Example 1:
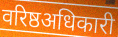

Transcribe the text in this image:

वरिष्ठअधिकारी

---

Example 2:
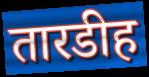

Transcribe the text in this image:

तारडीह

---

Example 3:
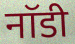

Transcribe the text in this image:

नॉडी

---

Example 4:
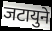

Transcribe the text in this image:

जटायुने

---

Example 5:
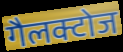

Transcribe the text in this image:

गैलक्टोज